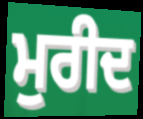
ਮੁਰੀਦ